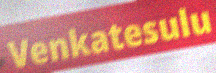
Venkatesulu